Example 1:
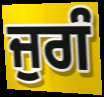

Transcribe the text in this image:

ਜੁਗੰ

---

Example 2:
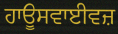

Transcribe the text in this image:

ਹਾਊਸਵਾਈਵਜ਼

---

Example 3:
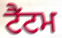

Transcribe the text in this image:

ਟੈਂਟਮ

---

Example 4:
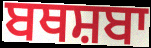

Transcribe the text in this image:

ਬਥਸ਼ਬਾ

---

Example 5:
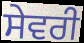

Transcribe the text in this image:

ਸੇਵਰੀ